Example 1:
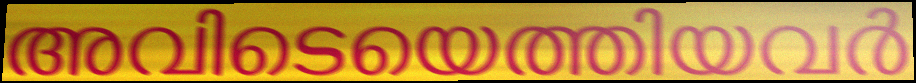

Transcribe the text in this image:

അവിടെയെത്തിയവർ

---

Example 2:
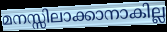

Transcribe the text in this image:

മനസ്സിലാക്കാനാകില്ല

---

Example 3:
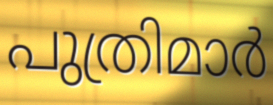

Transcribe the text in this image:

പുത്രിമാർ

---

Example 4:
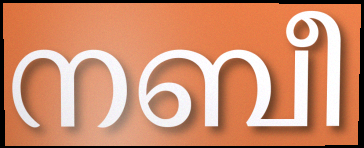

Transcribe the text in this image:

നബീ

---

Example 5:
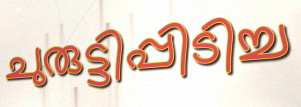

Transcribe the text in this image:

ചുരുട്ടിപ്പിടിച്ച